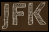
JFK